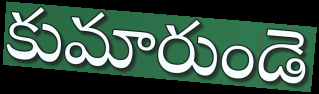
కుమారుండె